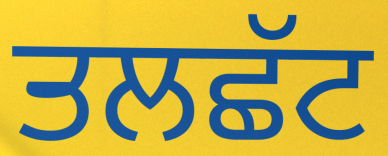
ਤਲਛੱਟ